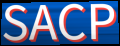
SACP